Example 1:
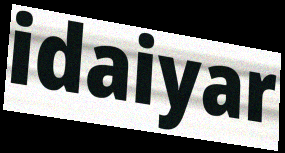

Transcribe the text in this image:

idaiyar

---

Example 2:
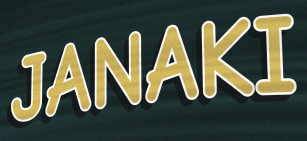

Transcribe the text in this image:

JANAKI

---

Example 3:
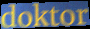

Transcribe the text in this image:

doktor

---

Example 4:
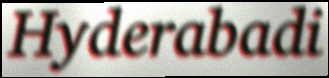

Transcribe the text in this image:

Hyderabadi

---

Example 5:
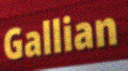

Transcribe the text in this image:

Gallian